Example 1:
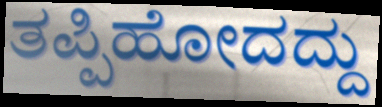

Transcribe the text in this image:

ತಪ್ಪಿಹೋದದ್ದು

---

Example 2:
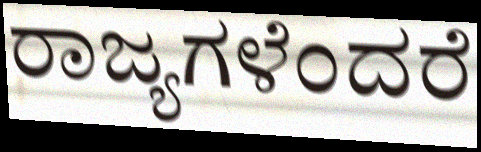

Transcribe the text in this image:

ರಾಜ್ಯಗಳೆಂದರೆ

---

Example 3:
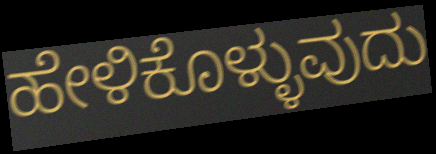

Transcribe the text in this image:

ಹೇಳಿಕೊಳ್ಳುವುದು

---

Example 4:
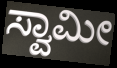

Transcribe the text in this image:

ಸ್ವಾಮೀ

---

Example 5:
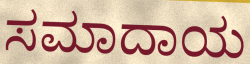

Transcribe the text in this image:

ಸಮಾದಾಯ